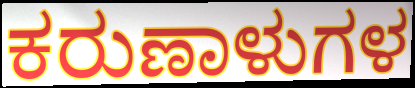
ಕರುಣಾಳುಗಳ